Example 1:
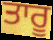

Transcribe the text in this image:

ਤਾਰੂ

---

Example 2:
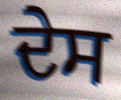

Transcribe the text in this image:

ਦੇਸ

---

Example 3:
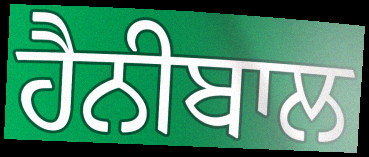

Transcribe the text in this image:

ਹੈਨੀਬਾਲ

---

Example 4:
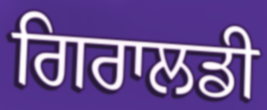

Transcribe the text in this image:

ਗਿਰਾਲਡੀ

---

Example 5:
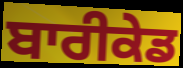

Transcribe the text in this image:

ਬਾਰੀਕੇਡ